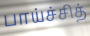
பாய்ச்சித்